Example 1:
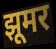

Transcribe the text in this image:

झूमर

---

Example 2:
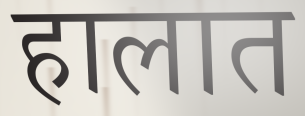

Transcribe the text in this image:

हालात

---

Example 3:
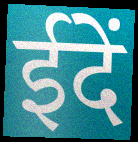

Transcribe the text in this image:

ईदें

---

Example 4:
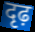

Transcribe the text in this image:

दृढ़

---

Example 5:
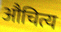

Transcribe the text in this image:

औचित्य